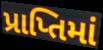
પ્રાપ્તિમાં